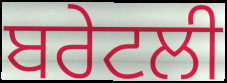
ਬਰੇਟਲੀ